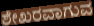
ಶೇಖರವಾಗುವ